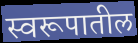
स्वरूपातील